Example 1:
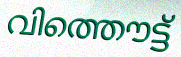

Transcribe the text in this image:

വിത്തൌട്ട്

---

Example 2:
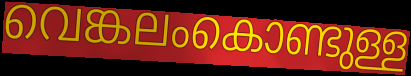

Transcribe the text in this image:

വെങ്കലംകൊണ്ടുള്ള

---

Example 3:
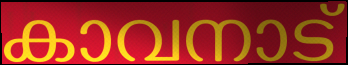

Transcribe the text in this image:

കാവനാട്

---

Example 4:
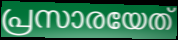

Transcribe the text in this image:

പ്രസാരയേത്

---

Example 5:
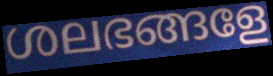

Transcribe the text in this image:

ശലഭങ്ങളേ